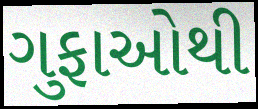
ગુફાઓથી